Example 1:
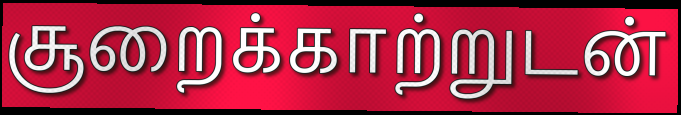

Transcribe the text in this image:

சூறைக்காற்றுடன்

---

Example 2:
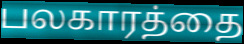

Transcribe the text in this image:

பலகாரத்தை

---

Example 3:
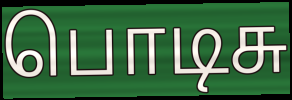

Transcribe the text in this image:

பொடிசு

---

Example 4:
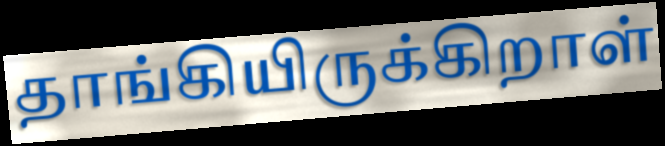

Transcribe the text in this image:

தாங்கியிருக்கிறாள்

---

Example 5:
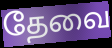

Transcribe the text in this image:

தேவை